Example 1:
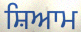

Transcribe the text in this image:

ਸ਼ਿਆਮ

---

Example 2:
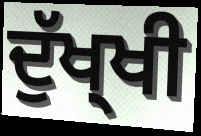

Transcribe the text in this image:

ਦੁੱਖ੍ਖੀ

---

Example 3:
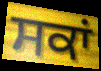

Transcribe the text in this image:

ਸਕਾਂ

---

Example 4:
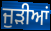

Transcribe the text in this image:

ਜੁੜੀਆਂ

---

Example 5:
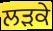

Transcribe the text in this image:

ਲੜਕੇ